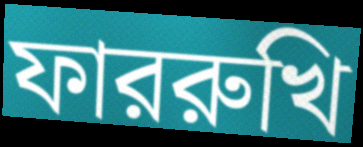
ফাররুখি